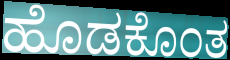
ಹೊಡಕೊಂತ